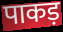
पाकड़